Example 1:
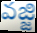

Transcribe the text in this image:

వజ్జి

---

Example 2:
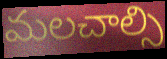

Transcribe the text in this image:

మలచాల్సి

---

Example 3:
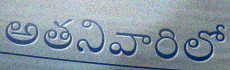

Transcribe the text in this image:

అతనివారిలో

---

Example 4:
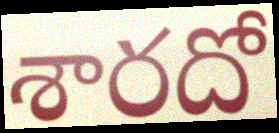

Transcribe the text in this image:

శారదో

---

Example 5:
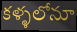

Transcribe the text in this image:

కళ్ళలోనూ